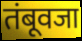
तंबूवजा